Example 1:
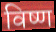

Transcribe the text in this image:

विष्ण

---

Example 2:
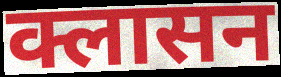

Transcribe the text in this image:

क्लासन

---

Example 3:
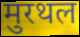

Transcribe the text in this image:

मुरथल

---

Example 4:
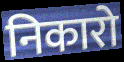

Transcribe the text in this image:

निकारो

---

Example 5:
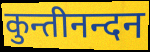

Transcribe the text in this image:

कुन्तीनन्दन